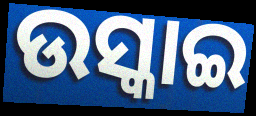
ଉସ୍କାଇ